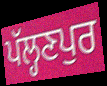
ਪੱਲ੍ਹਣਪੁਰ